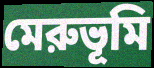
মেরুভূমি